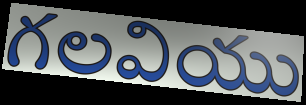
గలవియు